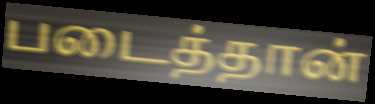
படைத்தான்